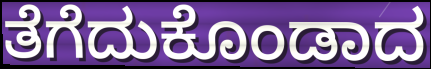
ತೆಗೆದುಕೊಂಡಾದ